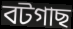
বটগাছ